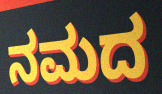
ನಮದ